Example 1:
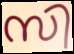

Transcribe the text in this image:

സി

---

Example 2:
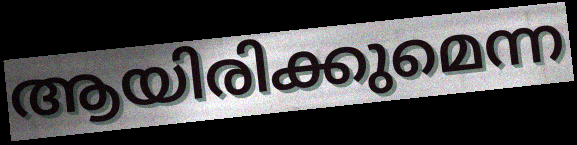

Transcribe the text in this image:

ആയിരിക്കുമെന്ന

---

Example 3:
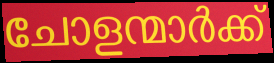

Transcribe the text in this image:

ചോളന്മാർക്ക്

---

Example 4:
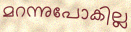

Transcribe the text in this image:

മറന്നുപോകില്ല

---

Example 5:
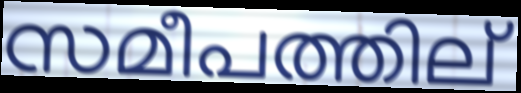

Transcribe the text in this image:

സമീപത്തില്